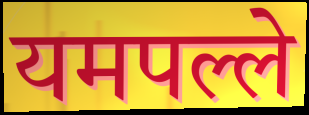
यमपल्ले